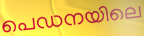
പെഡനയിലെ